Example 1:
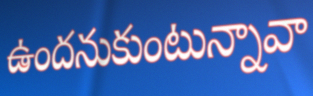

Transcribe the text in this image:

ఉందనుకుంటున్నావా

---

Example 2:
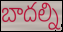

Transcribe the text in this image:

బాదల్ని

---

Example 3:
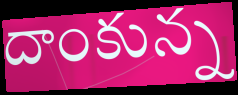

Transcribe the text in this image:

దాంకున్న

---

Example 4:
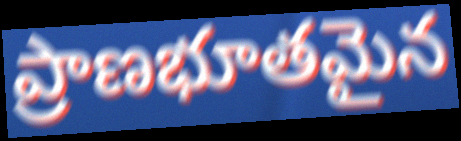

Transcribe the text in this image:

ప్రాణభూతమైన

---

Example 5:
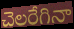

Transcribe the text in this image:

చెలరేగినా